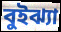
বুইঝ্যা